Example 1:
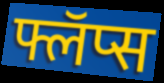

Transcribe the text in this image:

फ्लॅप्स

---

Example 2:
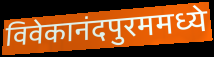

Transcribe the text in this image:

विवेकानंदपुरममध्ये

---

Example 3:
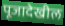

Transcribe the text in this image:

पूजादेखील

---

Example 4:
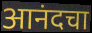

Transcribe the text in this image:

आनंदचा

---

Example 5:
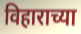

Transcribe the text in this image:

विहाराच्या